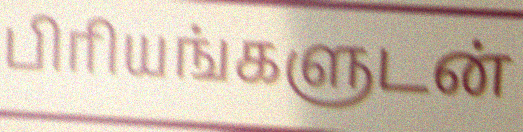
பிரியங்களுடன்